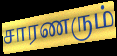
சாரணரும்